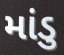
માંડુ